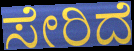
ಸೇರಿದೆ